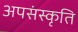
अपसंस्कृति